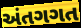
અંતગગત